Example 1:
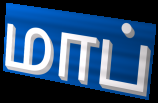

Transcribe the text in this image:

மாப்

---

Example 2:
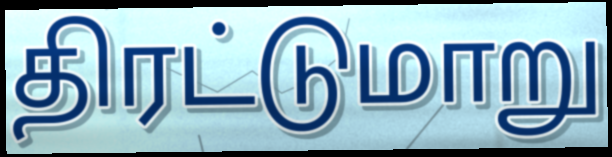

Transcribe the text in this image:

திரட்டுமாறு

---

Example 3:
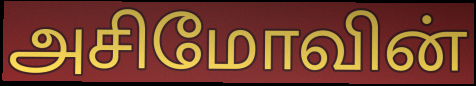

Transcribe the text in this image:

அசிமோவின்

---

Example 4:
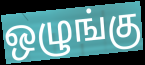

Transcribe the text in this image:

ஒழுங்கு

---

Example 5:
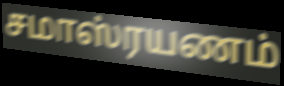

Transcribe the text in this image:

சமாஸ்ரயணம்